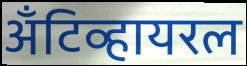
अँटिव्हायरल